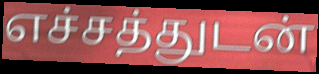
எச்சத்துடன்